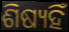
ଶିଷ୍ୟହିଁ